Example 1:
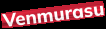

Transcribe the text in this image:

Venmurasu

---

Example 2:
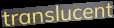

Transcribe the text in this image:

translucent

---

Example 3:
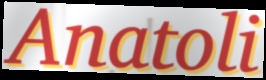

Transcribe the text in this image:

Anatoli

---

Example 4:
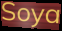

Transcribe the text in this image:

Soya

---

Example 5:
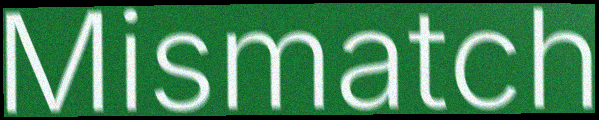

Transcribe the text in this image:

Mismatch